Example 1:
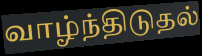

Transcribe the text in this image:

வாழ்ந்திடுதல்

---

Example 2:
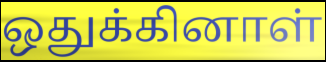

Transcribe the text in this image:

ஒதுக்கினாள்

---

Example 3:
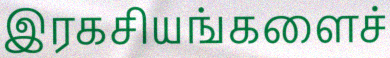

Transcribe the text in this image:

இரகசியங்களைச்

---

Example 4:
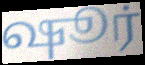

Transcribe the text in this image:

ஷூர்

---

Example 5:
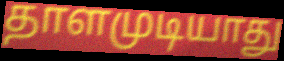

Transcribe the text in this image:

தாளமுடியாது